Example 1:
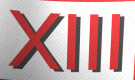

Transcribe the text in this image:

XIII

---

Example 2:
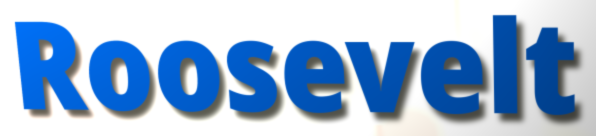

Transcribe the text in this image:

Roosevelt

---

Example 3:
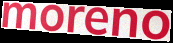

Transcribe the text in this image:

moreno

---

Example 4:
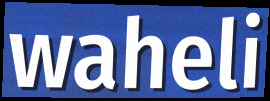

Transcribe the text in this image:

waheli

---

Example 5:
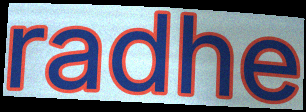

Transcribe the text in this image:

radhe